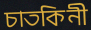
চাতকিনী